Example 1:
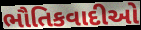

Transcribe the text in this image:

ભૌતિકવાદીઓ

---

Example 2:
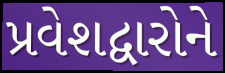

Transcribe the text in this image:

પ્રવેશદ્વારોને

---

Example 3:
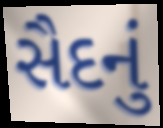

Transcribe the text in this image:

સૈદનું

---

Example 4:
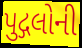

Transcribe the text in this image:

પુદ્ગલોની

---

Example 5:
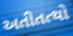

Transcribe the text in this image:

અતીતત્થો